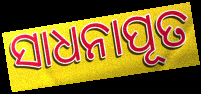
ସାଧନାପୂତ